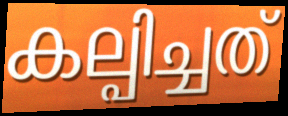
കല്പിച്ചത്